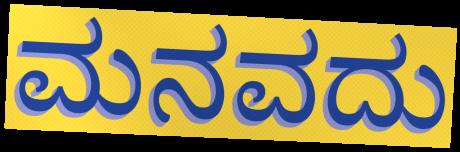
ಮನವದು